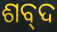
ଶବ୍‌ଦ